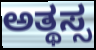
ಅತ್ಥಸ್ಸ